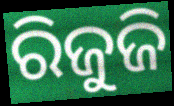
ରିଜୁଜି